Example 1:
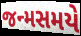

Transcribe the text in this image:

જન્મસમયે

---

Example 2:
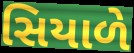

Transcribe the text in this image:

સિયાળે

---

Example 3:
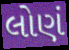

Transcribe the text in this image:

લોણં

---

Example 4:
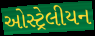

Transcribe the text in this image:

ઓસ્ટ્રેલીયન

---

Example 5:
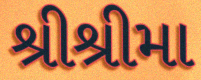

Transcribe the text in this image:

શ્રીશ્રીમા